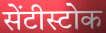
सेंटीस्टोक